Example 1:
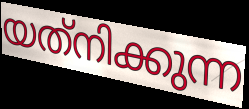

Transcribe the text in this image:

യത്‌നിക്കുന്ന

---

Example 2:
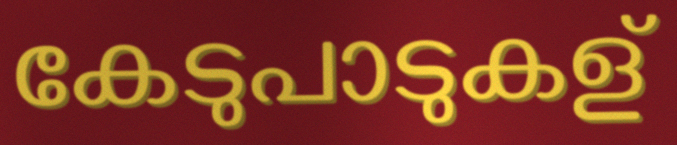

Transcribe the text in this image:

കേടുപാടുകള്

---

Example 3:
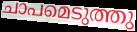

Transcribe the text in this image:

ചാപമെടുത്തു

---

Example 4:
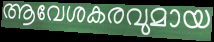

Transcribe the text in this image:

ആവേശകരവുമായ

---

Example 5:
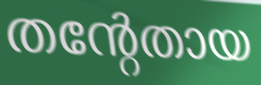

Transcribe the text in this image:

തന്റേതായ